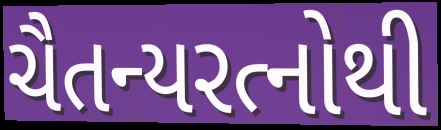
ચૈતન્યરત્નોથી